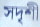
সদৃশী